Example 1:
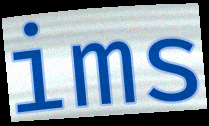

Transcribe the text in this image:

ims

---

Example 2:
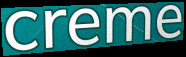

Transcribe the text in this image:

creme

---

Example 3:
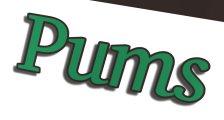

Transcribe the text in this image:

Pums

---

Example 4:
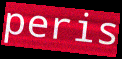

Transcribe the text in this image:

peris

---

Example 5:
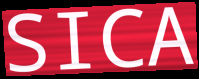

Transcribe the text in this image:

SICA